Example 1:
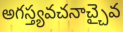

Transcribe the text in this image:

అగస్త్యవచనాచ్చైవ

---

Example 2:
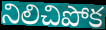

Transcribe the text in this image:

నిలిచిపోక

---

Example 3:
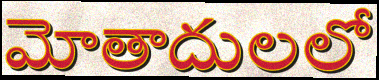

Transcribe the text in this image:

మోతాదులలో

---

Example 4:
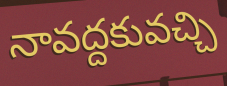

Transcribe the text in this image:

నావద్దకువచ్చి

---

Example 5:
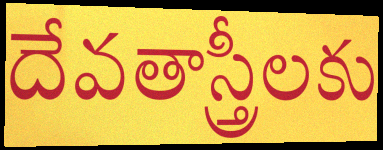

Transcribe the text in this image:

దేవతాస్త్రీలకు